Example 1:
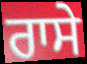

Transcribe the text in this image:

ਰਾਸੇ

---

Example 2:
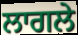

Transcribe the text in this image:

ਲਾਗਲੇ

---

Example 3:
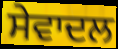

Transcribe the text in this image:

ਸੇਵਾਦਲ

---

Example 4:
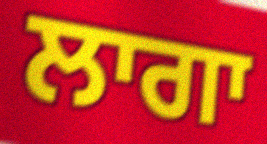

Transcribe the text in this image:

ਲਾਗਾ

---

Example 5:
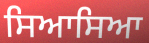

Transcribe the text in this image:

ਸਿਆਸਿਆ